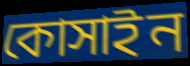
কোসাইন